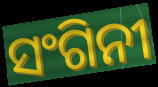
ସଂଗିନୀ